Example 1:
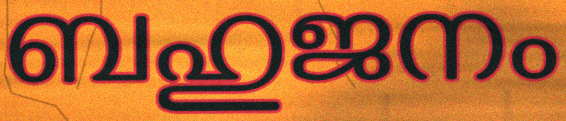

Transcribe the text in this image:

ബഹുജനം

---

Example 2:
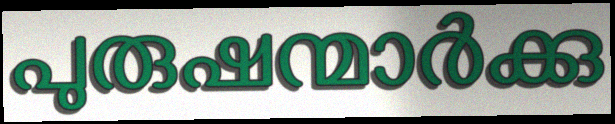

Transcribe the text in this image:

പുരുഷന്മാർക്കു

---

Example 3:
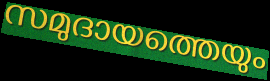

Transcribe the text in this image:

സമുദായത്തെയും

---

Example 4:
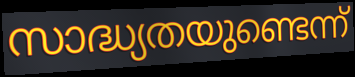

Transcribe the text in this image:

സാദ്ധ്യതയുണ്ടെന്ന്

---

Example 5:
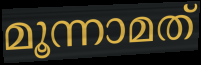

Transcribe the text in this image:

മൂന്നാമത്